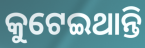
କୁଟେଇଥାନ୍ତି